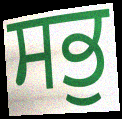
ਸਭੁ